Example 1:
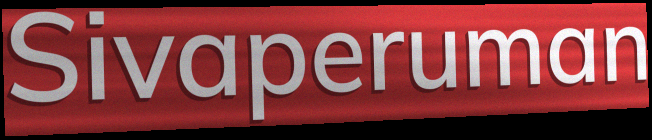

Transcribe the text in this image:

Sivaperuman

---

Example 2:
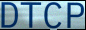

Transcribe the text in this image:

DTCP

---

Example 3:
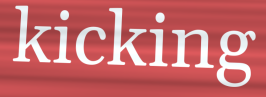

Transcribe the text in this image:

kicking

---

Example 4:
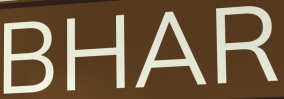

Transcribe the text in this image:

BHAR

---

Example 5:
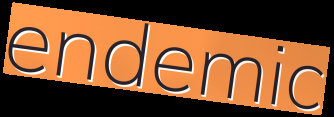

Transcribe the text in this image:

endemic